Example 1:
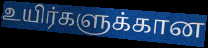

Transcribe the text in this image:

உயிர்களுக்கான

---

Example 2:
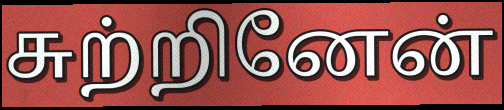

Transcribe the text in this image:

சுற்றினேன்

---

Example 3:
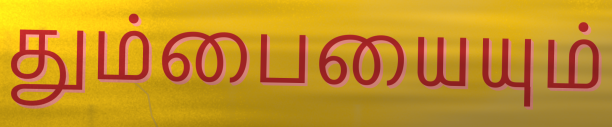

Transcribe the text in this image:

தும்பையையும்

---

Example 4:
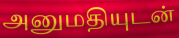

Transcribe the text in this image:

அனுமதியுடன்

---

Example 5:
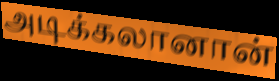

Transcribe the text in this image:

அடிக்கலானான்